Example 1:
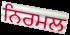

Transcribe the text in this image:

ਨਿਰਮਲ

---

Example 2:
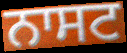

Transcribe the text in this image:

ਨਾਸਟ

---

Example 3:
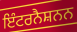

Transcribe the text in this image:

ਇੰਟਰਨੈਸ਼ਨਨ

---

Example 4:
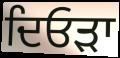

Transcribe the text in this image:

ਦਿਓੜਾ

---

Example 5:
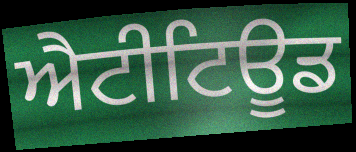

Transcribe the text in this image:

ਐਟੀਟਿਊਡ